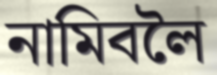
নামিবলৈ